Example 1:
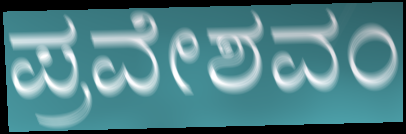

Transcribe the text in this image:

ಪ್ರವೇಶವಂ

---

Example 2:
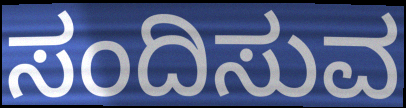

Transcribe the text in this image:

ಸಂದಿಸುವ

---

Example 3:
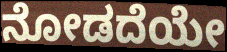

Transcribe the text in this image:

ನೋಡದೆಯೇ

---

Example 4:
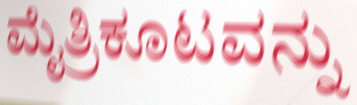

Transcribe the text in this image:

ಮೈತ್ರಿಕೂಟವನ್ನು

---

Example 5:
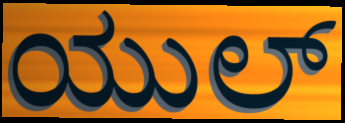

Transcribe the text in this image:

ಯುಲ್